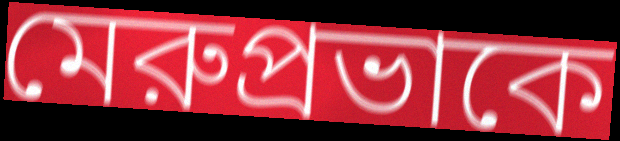
মেরুপ্রভাকে